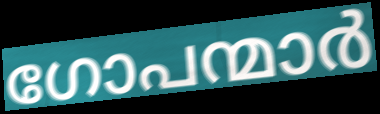
ഗോപന്മാർ